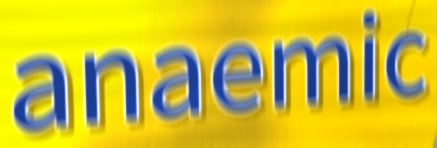
anaemic